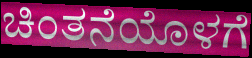
ಚಿಂತನೆಯೊಳಗೆ